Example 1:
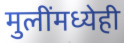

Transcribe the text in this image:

मुलींमध्येही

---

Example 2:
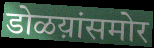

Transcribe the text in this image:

डोळय़ांसमोर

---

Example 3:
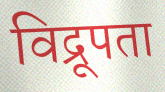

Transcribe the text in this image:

विद्रूपता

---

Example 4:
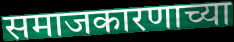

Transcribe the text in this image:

समाजकारणाच्या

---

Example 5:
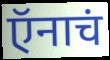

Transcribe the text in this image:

ऍनाचं